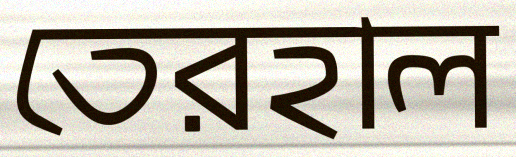
তেরহাল